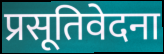
प्रसूतिवेदना